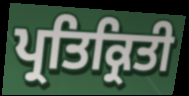
ਪ੍ਰਤਿਕ੍ਰਿਤੀ